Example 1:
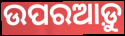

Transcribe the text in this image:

ଉପରଆଡ଼ୁ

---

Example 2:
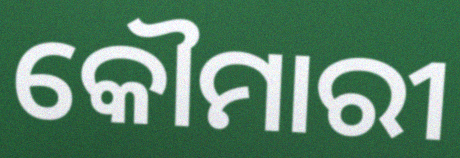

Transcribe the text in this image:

କୌମାରୀ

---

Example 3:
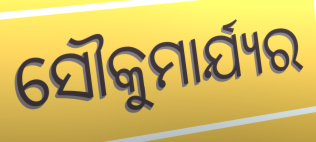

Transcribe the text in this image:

ସୌକୁମାର୍ଯ୍ୟର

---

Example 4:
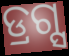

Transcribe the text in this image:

ଡ୍ରଗ୍ସ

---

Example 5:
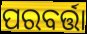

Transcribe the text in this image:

ପରବର୍ତ୍ତା